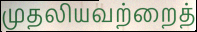
முதலியவற்றைத்